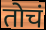
तोचं